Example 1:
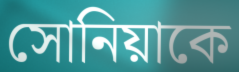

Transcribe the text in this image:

সোনিয়াকে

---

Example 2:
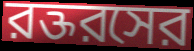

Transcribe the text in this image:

রক্তরসের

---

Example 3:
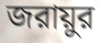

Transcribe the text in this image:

জরায়ুর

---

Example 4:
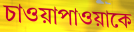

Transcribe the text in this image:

চাওয়াপাওয়াকে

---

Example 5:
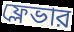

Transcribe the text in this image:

ফ্লেভার